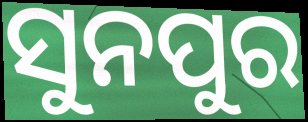
ସୁନପୁର